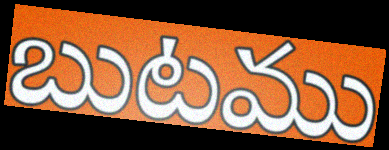
బుటము